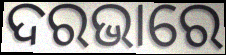
ଦରଭାରେ